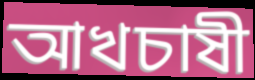
আখচাষী